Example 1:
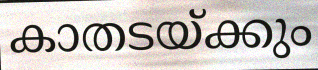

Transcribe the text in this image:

കാതടയ്ക്കും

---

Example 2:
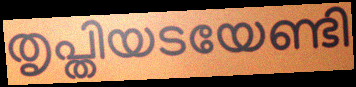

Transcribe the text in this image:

തൃപ്തിയടയേണ്ടി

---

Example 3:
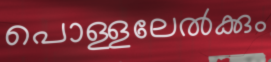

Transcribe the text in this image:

പൊള്ളലേൽക്കും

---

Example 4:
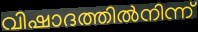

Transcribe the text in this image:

വിഷാദത്തിൽനിന്ന്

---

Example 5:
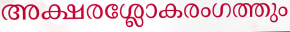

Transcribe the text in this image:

അക്ഷരശ്ലോകരംഗത്തും